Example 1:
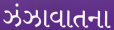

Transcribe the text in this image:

ઝંઝાવાતના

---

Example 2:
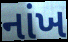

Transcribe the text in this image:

નાંખ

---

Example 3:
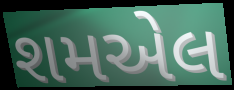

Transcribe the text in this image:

શમએલ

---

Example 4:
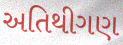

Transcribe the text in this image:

અતિથીગણ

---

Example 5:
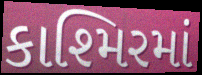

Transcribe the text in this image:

કાશ્મિરમાં